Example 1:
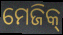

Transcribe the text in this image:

ମେଜିକ୍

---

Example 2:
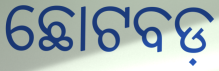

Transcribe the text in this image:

ଛୋଟବଡ଼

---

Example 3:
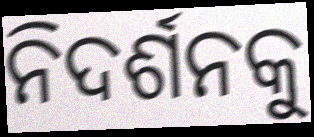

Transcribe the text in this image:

ନିଦର୍ଶନକୁ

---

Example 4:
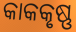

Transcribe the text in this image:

କାକକୃଷ୍ଣ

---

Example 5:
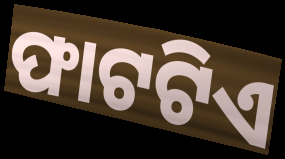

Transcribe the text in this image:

ଫାଟଟିଏ